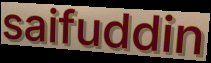
saifuddin